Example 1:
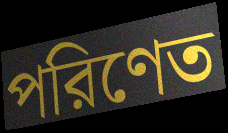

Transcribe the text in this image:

পরিণেত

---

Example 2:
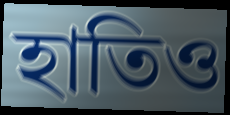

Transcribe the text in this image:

হাতিও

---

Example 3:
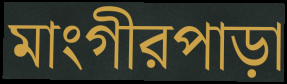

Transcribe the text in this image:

মাংগীরপাড়া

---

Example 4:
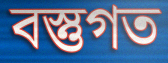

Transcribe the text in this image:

বস্তুগত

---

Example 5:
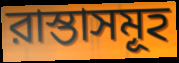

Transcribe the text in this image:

রাস্তাসমূহ